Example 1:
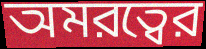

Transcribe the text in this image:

অমরত্বের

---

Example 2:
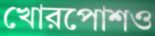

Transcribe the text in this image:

খোরপোশও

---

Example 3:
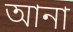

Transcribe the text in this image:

আনা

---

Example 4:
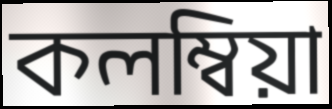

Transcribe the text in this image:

কলম্বিয়া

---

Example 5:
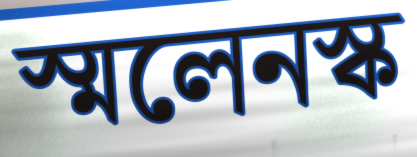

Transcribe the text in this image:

স্মলেনস্ক